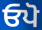
ਓਪੋ